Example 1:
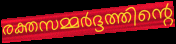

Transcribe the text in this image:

രക്തസമ്മർദ്ദത്തിന്റെ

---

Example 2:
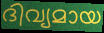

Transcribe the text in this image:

ദിവ്യമായ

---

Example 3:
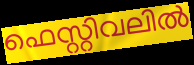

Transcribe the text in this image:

ഫെസ്റ്റിവലിൽ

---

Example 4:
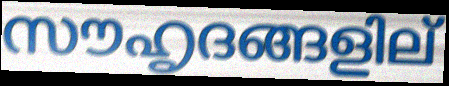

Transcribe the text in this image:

സൗഹൃദങ്ങളില്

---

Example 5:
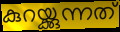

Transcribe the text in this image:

കുറയ്ക്കുന്നത്